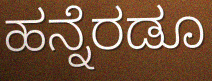
ಹನ್ನೆರಡೂ